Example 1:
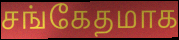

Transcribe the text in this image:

சங்கேதமாக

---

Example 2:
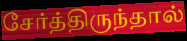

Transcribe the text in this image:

சேர்த்திருந்தால்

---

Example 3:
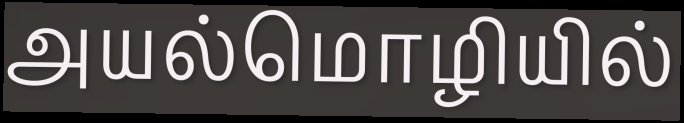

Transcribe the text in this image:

அயல்மொழியில்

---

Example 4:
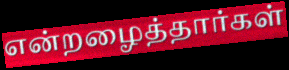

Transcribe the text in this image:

என்றழைத்தார்கள்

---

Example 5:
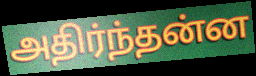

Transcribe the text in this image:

அதிர்ந்தன்ன